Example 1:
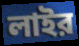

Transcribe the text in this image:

লাইর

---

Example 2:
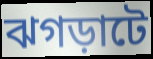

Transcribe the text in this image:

ঝগড়াটে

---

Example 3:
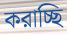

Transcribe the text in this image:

করাচ্ছি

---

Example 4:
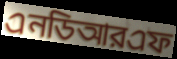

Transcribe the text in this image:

এনডিআরএফ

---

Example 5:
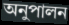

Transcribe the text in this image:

অনুপালন